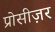
प्रोसीज़र